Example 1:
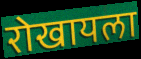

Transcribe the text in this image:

रोखायला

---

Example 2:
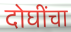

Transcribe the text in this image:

दोघींचा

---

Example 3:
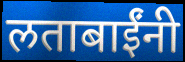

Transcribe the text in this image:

लताबाईंनी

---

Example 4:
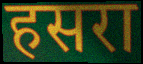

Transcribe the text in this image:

हसरा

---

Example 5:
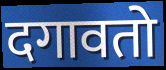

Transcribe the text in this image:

दगावतो